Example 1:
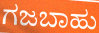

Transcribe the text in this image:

ಗಜಬಾಹು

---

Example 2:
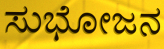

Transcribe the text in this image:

ಸುಭೋಜನ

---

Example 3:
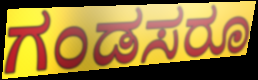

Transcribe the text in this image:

ಗಂಡಸರೂ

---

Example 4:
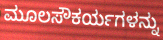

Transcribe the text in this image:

ಮೂಲಸೌಕರ್ಯಗಳನ್ನು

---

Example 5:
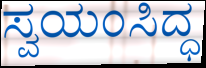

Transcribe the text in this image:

ಸ್ವಯಂಸಿದ್ಧ